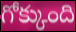
గోక్కుంది